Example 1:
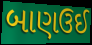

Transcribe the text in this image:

બાણઉઈ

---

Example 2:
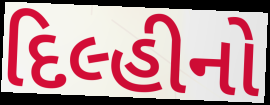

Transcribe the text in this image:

દિલ્હીનો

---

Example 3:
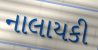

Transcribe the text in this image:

નાલાયકી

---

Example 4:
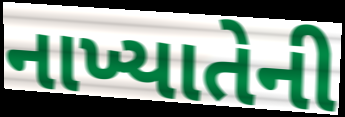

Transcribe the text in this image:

નાખ્યાતેની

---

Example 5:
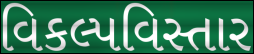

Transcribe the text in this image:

વિકલ્પવિસ્તાર